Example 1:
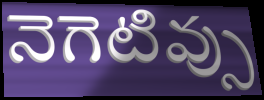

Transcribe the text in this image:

నెగెటివ్సు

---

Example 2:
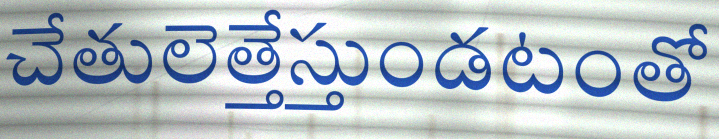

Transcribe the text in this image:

చేతులెత్తేస్తుండటంతో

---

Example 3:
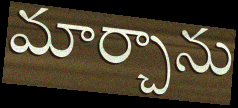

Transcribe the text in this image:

మార్చాను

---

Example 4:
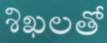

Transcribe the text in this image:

శిఖలతో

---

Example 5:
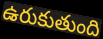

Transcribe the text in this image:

ఉరుకుతుంది